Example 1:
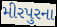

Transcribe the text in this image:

મીરપુરના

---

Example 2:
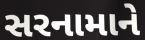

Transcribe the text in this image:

સરનામાને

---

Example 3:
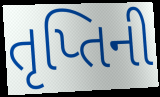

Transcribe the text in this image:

તૃપ્તિની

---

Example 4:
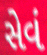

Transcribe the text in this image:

સેવં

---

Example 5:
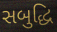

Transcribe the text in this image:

સબુદ્ધિ